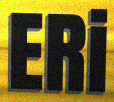
ERi